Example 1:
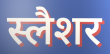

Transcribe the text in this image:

स्लैशर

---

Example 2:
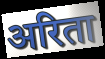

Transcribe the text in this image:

अरिता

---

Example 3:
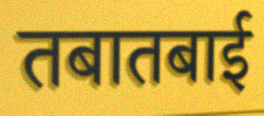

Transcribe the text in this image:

तबातबाई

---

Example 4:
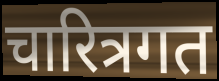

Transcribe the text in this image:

चारित्रगत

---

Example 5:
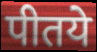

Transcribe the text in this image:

पीतये